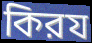
কিরয